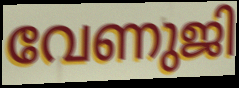
വേണുജി